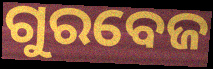
ଗୁରବେଜ